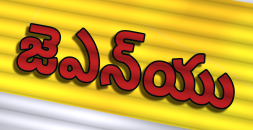
జెఎన్‌యు